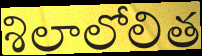
శిలాలోలిత